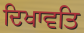
ਦਿਖਾਵਤਿ